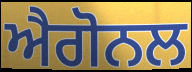
ਐਗੋਨਲ